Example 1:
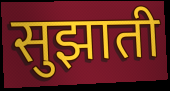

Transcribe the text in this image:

सुझाती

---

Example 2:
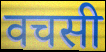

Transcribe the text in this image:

वचसी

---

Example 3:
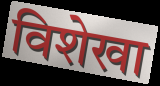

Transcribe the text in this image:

विशेखा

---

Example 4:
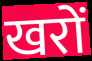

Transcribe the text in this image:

खरों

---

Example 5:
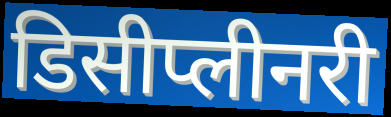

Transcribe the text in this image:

डिसीप्लीनरी